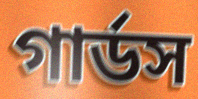
গার্ডস